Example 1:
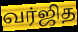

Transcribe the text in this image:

வர்ஜித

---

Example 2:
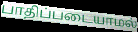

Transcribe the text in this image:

பாதிப்படையாமல்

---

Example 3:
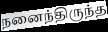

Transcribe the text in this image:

நனைந்திருந்த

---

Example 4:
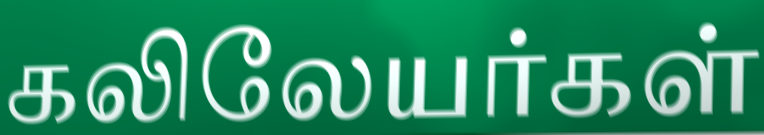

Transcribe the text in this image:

கலிலேயர்கள்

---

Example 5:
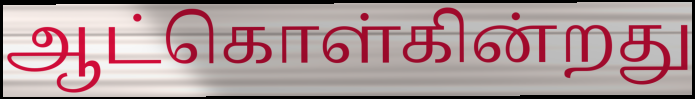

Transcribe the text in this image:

ஆட்கொள்கின்றது